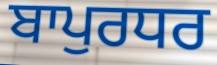
ਬਾਪੁਰਧਰ